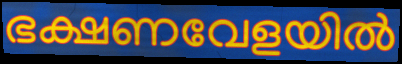
ഭക്ഷണവേളയിൽ